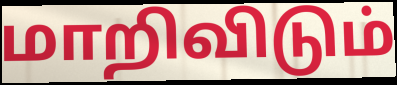
மாறிவிடும்